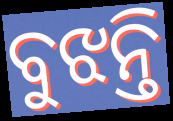
ବୁଝନ୍ତି